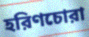
হরিণচোরা